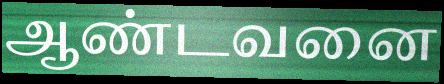
ஆண்டவனை